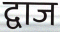
द्वाज